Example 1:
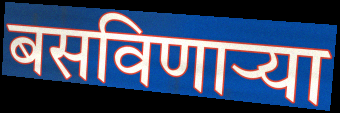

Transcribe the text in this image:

बसविणार्‍या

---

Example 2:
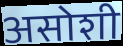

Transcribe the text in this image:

असोशी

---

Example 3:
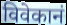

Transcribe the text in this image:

विवेकानं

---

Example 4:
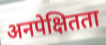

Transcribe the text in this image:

अनपेक्षितता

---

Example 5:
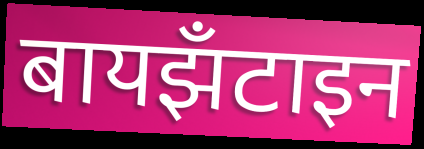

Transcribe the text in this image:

बायझँटाइन